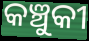
କଞ୍ଚୁକୀ